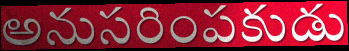
అనుసరింపకుడు